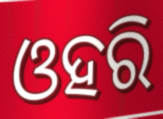
ଓହରି